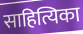
साहित्यिका